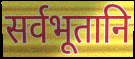
सर्वभूतानि